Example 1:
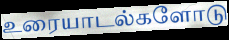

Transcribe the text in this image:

உரையாடல்களோடு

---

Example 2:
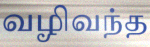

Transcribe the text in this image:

வழிவந்த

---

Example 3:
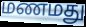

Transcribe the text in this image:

மணமது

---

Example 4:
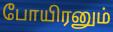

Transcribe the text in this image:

போயிரனும்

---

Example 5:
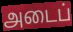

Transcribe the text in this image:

அடைப்